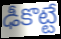
ఢీకొట్టే